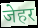
जेहर